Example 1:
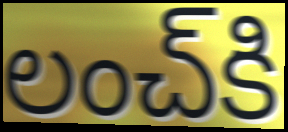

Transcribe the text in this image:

లంచ్‌కి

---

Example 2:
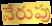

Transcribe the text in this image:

నేరుపు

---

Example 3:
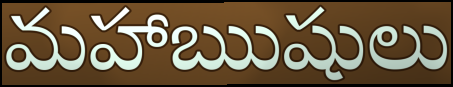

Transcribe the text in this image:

మహాఋషులు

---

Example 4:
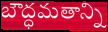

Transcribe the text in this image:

బౌద్ధమతాన్ని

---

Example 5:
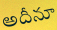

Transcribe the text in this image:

అదీనూ